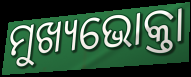
ମୁଖ୍ୟଭୋକ୍ତା